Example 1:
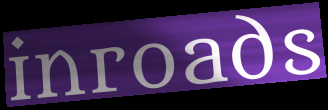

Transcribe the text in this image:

inroads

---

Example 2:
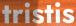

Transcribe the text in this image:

tristis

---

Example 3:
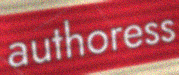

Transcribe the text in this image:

authoress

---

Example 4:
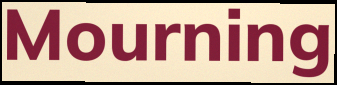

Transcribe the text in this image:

Mourning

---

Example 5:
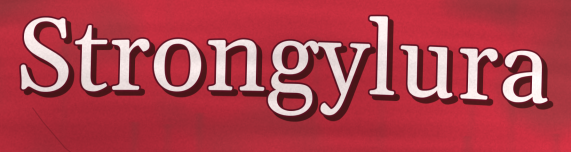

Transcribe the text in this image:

Strongylura